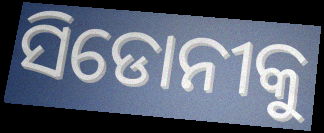
ସିଡୋନୀକୁ